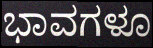
ಭಾವಗಳೂ